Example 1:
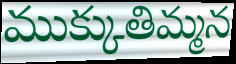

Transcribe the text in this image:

ముక్కుతిమ్మన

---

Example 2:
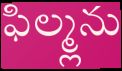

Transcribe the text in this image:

ఫిల్మ్లను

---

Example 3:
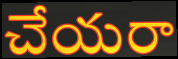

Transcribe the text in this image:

చేయరా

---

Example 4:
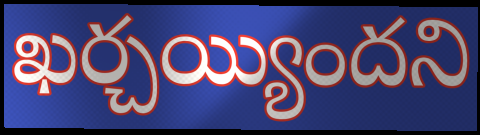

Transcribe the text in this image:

ఖర్చయ్యిందని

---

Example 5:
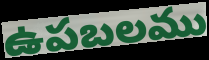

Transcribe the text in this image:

ఉపబలము